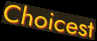
Choicest